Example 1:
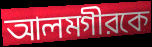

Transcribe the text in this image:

আলমগীরকে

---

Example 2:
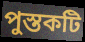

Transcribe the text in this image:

পুস্তকটি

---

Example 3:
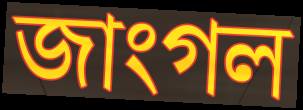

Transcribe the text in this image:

জাংগল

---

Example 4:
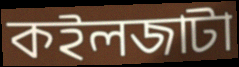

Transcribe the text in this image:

কইলজাটা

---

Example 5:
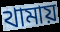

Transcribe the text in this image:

থামায়